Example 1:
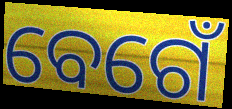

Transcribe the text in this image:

ବେଗେଁ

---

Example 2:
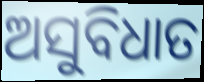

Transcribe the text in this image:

ଅସୁବିଧାତ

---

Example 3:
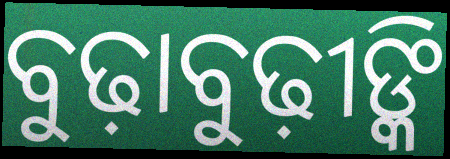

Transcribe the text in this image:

ବୁଢ଼ାବୁଢ଼ୀଙ୍କି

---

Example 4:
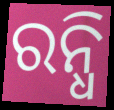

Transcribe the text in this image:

ରନ୍ଧି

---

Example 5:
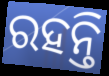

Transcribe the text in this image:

ରହନ୍ତି